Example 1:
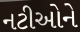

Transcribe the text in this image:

નટીઓને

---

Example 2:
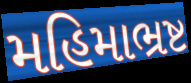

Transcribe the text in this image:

મહિમાભ્રષ્ટ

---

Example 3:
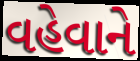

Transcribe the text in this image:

વહેવાને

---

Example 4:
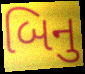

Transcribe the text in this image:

બિનુ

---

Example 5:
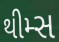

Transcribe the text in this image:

થીમ્સ